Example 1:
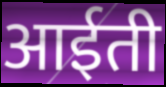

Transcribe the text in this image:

आईती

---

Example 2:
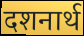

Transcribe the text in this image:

दशनार्थ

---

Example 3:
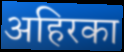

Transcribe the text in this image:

अहिरका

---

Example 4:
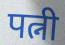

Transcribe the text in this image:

पत्नी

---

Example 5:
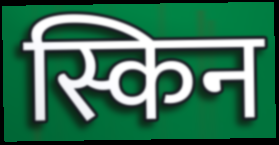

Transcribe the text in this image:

स्किन